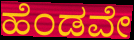
ಹೆಂಡವೇ